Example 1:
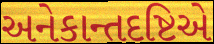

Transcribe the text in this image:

અનેકાન્તદષ્ટિએ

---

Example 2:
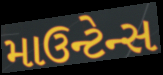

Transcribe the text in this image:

માઉન્ટેન્સ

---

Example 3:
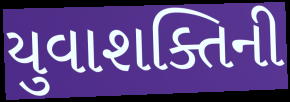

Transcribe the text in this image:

યુવાશક્તિની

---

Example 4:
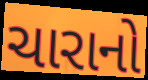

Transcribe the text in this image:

ચારાનો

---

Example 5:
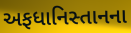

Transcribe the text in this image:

અફધાનિસ્તાનના